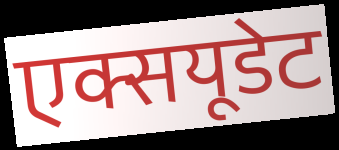
एक्सयूडेट